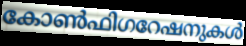
കോൺഫിഗറേഷനുകൾ